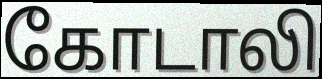
கோடாலி